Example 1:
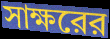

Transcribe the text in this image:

সাক্ষরের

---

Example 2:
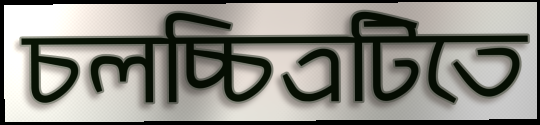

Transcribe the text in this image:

চলচ্চিত্রটিতে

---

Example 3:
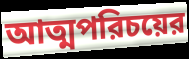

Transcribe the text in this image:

আত্মপরিচয়ের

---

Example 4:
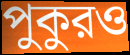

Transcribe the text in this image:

পুকুরও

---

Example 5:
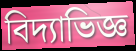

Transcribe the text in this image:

বিদ্যাভিজ্ঞ